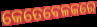
କେତେବେଳକରେ